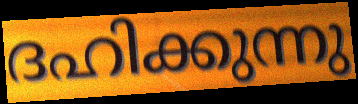
ദഹിക്കുന്നു